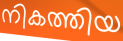
നികത്തിയ